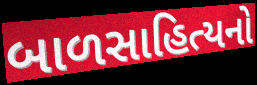
બાળસાહિત્યનો